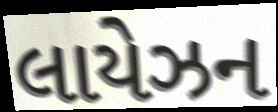
લાયેઝન